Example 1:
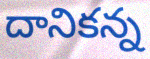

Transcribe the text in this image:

దానికన్న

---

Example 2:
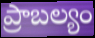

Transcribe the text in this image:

ప్రాబల్యం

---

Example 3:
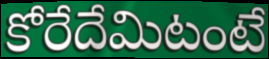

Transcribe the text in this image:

కోరేదేమిటంటే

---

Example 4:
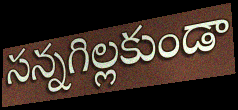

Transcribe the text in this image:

సన్నగిల్లకుండా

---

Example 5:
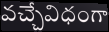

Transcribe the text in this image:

వచ్చేవిధంగా